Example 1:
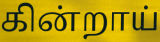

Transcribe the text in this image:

கின்றாய்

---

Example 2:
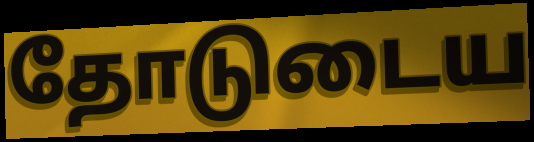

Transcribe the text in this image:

தோடுடைய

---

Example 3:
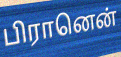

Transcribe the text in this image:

பிரானென்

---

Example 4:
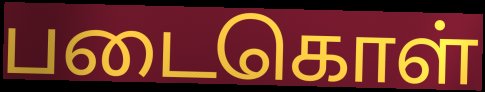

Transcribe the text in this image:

படைகொள்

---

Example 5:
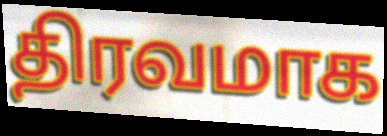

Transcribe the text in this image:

திரவமாக